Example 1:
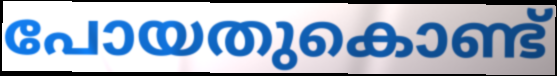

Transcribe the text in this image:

പോയതുകൊണ്ട്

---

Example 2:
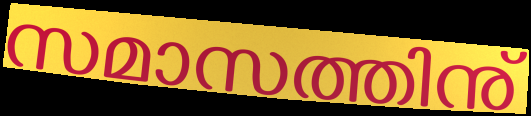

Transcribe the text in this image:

സമാസത്തിനു്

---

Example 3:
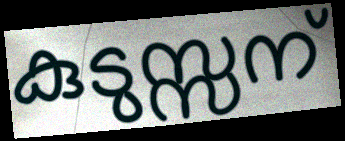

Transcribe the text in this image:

കുടുസ്സന്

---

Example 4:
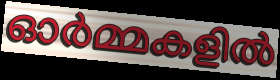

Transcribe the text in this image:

ഓർമ്മകളിൽ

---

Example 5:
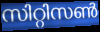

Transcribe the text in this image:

സിറ്റിസൺ